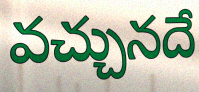
వచ్చునదే